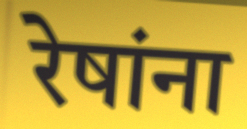
रेषांना